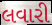
લવારી